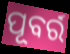
ପୂବର୍ର